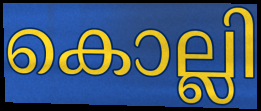
കൊല്ലി